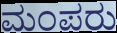
ಮಂಪರು